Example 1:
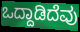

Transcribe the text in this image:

ಒದ್ದಾಡಿದೆವು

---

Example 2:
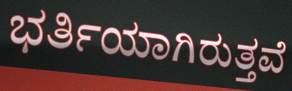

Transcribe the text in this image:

ಭರ್ತಿಯಾಗಿರುತ್ತವೆ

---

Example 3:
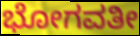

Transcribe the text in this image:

ಭೋಗವತೀ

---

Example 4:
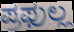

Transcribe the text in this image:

ಪ್ರಫುಲ್ಲ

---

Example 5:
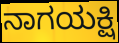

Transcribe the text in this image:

ನಾಗಯಕ್ಷಿ